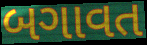
બગાવત